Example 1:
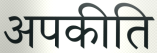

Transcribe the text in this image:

अपकीति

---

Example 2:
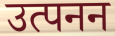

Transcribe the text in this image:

उत्पनन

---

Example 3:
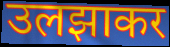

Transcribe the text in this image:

उलझाकर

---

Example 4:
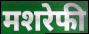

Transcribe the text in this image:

मशरेफी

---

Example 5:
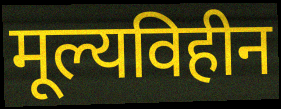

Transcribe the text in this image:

मूल्यविहीन